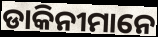
ଡାକିନୀମାନେ